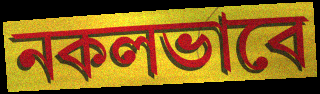
নকলভাবে